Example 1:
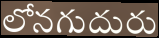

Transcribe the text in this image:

లోనగుదురు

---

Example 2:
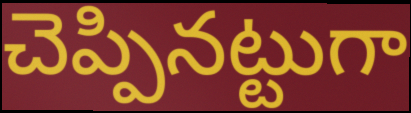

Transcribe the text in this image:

చెప్పినట్టుగా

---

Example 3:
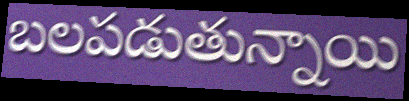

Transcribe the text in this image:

బలపడుతున్నాయి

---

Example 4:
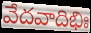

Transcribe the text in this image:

వేదవాదిభిః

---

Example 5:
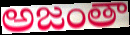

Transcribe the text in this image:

అజంతా